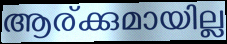
ആര്ക്കുമായില്ല